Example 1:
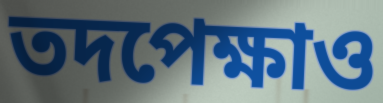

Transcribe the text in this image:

তদপেক্ষাও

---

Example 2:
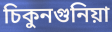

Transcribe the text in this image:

চিকুনগুনিয়া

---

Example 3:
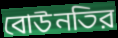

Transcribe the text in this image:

বোউনতির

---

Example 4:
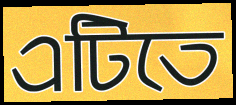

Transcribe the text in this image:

এটিতে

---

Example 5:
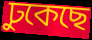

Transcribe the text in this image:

ঢুকেছে